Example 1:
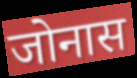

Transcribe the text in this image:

जोनास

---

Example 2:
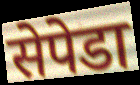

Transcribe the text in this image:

सेपेडा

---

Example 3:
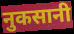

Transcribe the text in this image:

नुकसानी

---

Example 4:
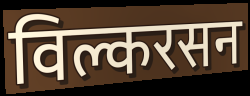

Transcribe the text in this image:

विल्करसन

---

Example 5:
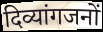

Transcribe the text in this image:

दिव्यांगजनों